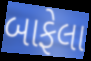
બાફેલા